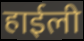
हाईली